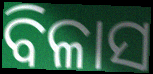
ବିଳାସ